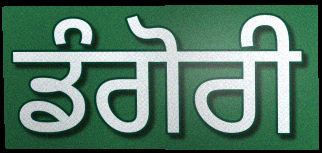
ਡੰਗੋਰੀ